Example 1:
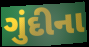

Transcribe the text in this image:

ગુંદીના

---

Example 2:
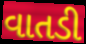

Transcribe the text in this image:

વાતડી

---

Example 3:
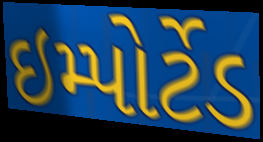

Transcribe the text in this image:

ઇમ્પોર્ટેડ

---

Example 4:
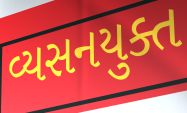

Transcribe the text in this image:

વ્યસનયુક્ત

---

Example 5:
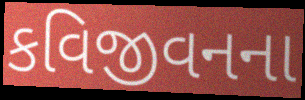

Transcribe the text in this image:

કવિજીવનના